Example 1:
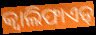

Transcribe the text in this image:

କ୍ୱାଲିଫାଏଡ୍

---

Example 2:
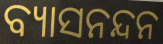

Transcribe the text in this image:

ବ୍ୟାସନନ୍ଦନ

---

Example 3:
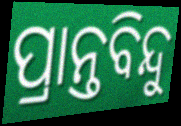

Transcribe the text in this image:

ପ୍ରାନ୍ତବିନ୍ଦୁ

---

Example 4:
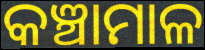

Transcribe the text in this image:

କଞ୍ଚାମାଳ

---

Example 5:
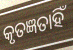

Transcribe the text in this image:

କୃତଜ୍ଞତାହିଁ